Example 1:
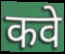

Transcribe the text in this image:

कवे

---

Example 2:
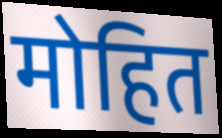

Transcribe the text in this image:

मोहित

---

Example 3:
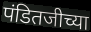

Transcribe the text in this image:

पंडितजीच्या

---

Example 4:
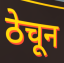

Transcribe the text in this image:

ठेचून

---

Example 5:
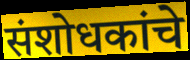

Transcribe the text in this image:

संशोधकांचे